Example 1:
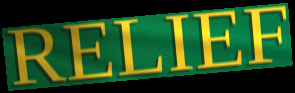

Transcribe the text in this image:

RELIEF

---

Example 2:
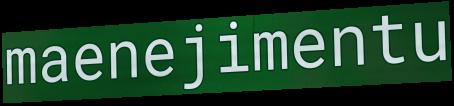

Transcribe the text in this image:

maenejimentu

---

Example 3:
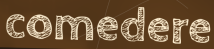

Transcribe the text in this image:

comedere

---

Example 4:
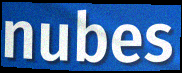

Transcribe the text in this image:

nubes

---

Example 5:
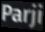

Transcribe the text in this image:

Parji